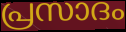
പ്രസാദം